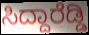
ಸಿದ್ದಾರೆಡ್ಡಿ